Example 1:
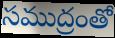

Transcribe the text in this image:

సముద్రంతో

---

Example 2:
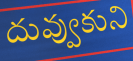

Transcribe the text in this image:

దువ్వుకుని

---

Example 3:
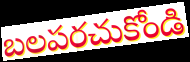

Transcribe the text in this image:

బలపరచుకోండి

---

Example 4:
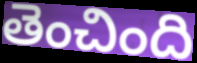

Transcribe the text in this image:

తెంచింది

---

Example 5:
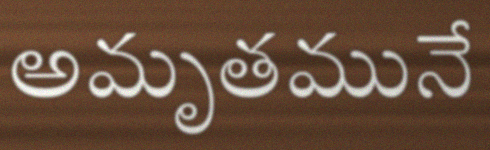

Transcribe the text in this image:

అమృతమునే